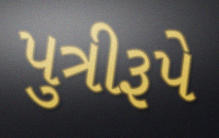
પુત્રીરૂપે